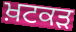
ਖ਼ਟਕੜ